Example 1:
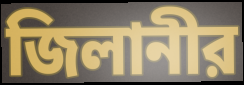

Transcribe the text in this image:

জিলানীর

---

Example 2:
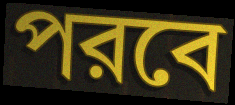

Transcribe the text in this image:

পরবে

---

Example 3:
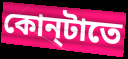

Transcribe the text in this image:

কোন্‌টাতে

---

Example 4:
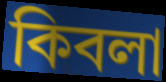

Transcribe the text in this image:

কিবলা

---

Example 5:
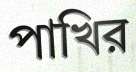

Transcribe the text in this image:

পাখির